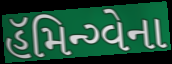
હૅમિન્ગ્વેના